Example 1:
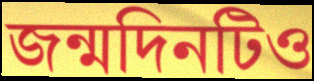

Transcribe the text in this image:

জন্মদিনটিও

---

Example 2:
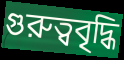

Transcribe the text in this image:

গুরুত্ববৃদ্ধি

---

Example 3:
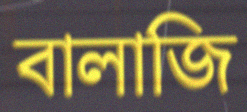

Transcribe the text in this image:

বালাজি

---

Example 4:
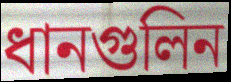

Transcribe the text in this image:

ধানগুলিন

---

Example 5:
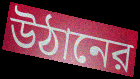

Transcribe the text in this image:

উঠানের